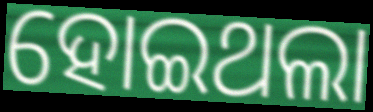
ହୋଇଥଲା